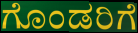
ಗೊಂಡರಿಗೆ